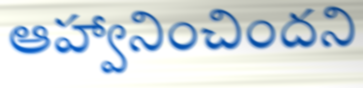
ఆహ్వానించిందని